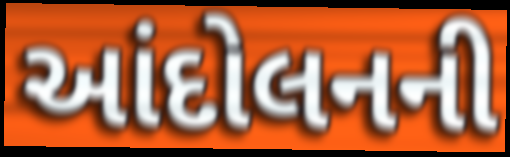
આંદોલનની